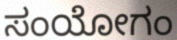
ಸಂಯೋಗಂ